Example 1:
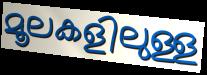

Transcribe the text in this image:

മൂലകളിലുള്ള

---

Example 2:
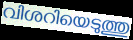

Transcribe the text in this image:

വിശറിയെടുത്തു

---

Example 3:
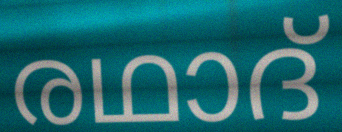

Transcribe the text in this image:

രഥാദ്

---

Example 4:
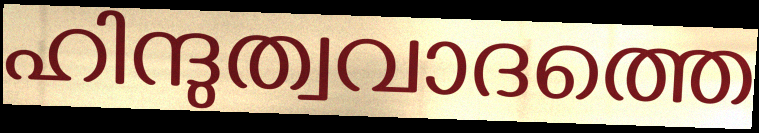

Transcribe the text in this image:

ഹിന്ദുത്വവാദത്തെ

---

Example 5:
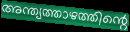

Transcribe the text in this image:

അന്ത്യത്താഴത്തിന്റെ